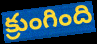
క్రుంగింది